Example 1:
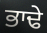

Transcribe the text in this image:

ਭਾਢੇ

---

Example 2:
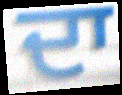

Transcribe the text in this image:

ਦਾ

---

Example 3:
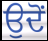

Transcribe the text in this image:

ਉਦੋਂ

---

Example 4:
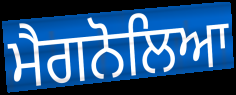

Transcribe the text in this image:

ਮੈਗਨੋਲਿਆ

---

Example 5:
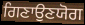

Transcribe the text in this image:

ਗਿਣਾਉਣਯੋਗ